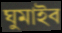
ঘুমাইব